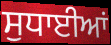
ਸੁਧਾਈਆਂ